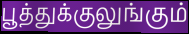
பூத்துக்குலுங்கும்